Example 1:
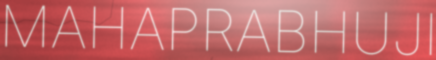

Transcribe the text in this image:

MAHAPRABHUJI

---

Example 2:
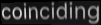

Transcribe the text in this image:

coinciding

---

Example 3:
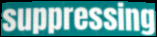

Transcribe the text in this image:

suppressing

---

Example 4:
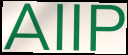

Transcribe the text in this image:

AIIP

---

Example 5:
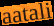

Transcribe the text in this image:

aatali